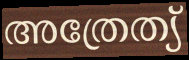
അത്രേത്യ്